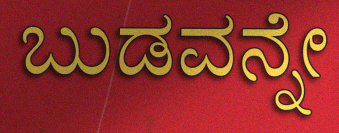
ಬುಡವನ್ನೇ